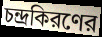
চন্দ্রকিরণের